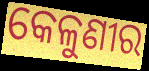
କେଳୁଣୀର